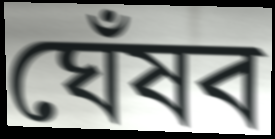
ঘেঁষব